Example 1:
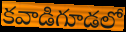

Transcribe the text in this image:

కవాడిగూడలో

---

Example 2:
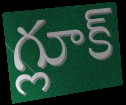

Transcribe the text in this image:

గ్లూక్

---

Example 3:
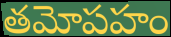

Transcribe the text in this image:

తమోపహం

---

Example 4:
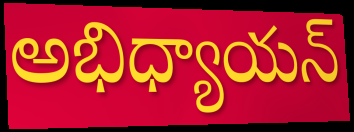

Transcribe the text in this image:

అభిధ్యాయన్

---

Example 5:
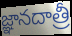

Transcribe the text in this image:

జ్ఞానదాత్రీ